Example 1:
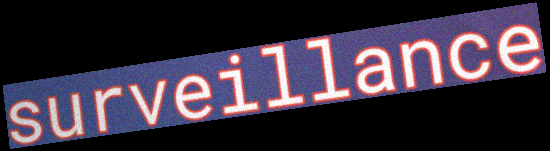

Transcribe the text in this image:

surveillance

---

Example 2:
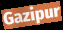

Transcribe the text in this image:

Gazipur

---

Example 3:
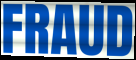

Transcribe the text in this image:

FRAUD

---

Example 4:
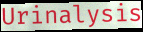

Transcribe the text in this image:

Urinalysis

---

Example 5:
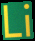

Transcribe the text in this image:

Li